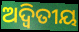
ଅଦ୍ବିତୀୟ